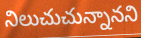
నిలుచుచున్నానని